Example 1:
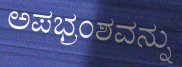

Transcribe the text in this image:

ಅಪಭ್ರಂಶವನ್ನು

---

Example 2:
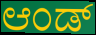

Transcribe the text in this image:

ಆಂಡ್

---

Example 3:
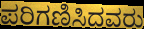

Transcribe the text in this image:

ಪರಿಗಣಿಸಿದವರು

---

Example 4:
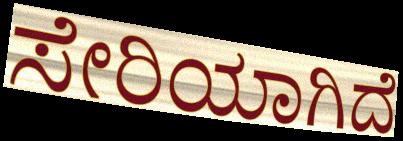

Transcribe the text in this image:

ಸೇರಿಯಾಗಿದೆ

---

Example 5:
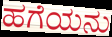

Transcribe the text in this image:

ಹಗೆಯನು